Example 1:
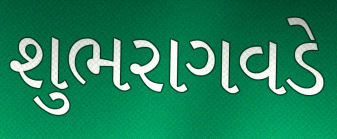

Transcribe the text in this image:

શુભરાગવડે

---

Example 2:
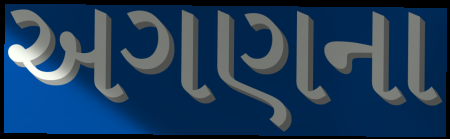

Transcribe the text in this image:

અગણના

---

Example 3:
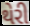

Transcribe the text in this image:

થેરી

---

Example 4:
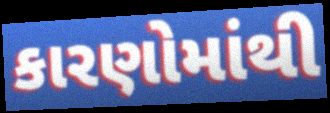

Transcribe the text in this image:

કારણોમાંથી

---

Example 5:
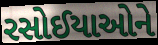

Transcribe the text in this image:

રસોઈયાઓને